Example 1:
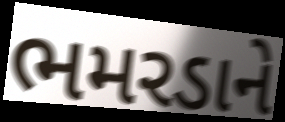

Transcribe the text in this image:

ભમરડાને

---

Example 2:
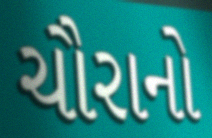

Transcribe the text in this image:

ચૌરાનો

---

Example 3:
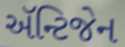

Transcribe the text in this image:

ઍન્ટિજેન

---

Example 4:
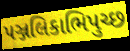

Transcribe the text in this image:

પઞ્જલિકાભિપુચ્છ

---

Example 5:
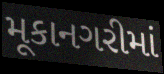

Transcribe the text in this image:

મૂકાનગરીમાં